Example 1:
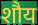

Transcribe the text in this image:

शौय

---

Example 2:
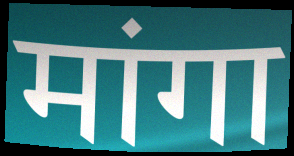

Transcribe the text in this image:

मांगा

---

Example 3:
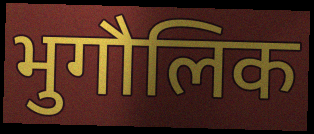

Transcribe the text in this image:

भुगौलिक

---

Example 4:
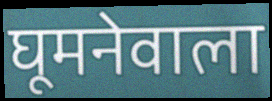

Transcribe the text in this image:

घूमनेवाला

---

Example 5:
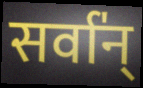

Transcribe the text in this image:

सर्वा॑न्